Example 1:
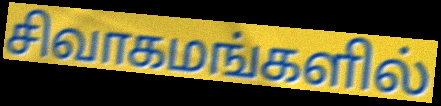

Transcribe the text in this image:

சிவாகமங்களில்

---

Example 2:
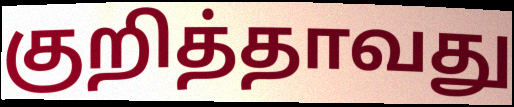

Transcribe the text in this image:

குறித்தாவது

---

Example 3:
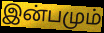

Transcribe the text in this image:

இன்பமும்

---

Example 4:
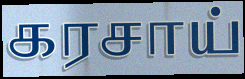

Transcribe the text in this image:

கரசாய்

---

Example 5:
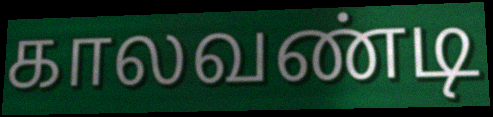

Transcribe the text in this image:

காலவண்டி